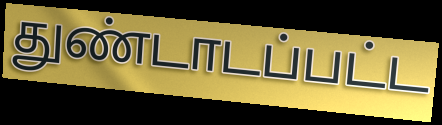
துண்டாடப்பட்ட